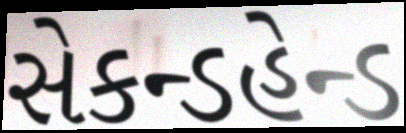
સેકન્ડહેન્ડ